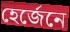
হেৰ্জেনে